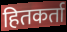
हितकर्ता